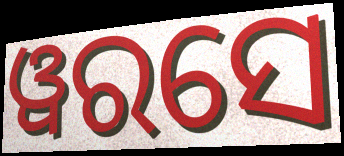
ୱରସେ